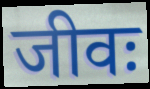
जीवः